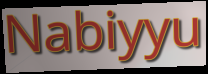
Nabiyyu